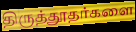
திருத்தூதர்களை